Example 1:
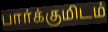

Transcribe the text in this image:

பார்க்குமிடம்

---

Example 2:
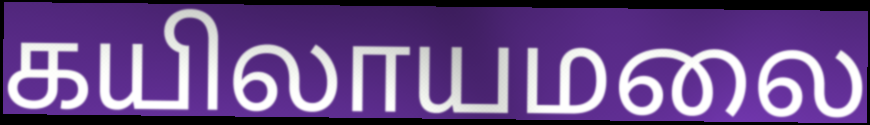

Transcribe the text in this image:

கயிலாயமலை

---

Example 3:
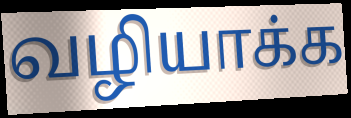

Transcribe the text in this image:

வழியாக்க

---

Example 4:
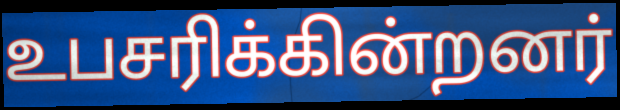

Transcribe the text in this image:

உபசரிக்கின்றனர்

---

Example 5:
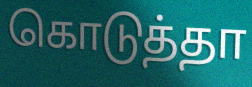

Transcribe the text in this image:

கொடுத்தா